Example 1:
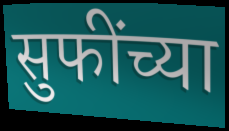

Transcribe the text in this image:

सुफींच्या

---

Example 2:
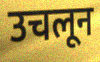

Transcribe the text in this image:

उचलून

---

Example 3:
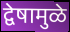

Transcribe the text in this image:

द्वेषामुळे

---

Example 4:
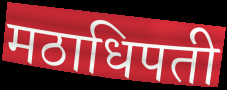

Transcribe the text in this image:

मठाधिपती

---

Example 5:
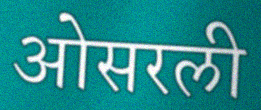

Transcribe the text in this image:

ओसरली